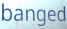
banged